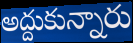
అద్దుకున్నారు